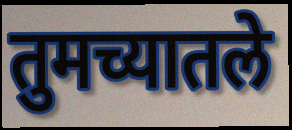
तुमच्यातले